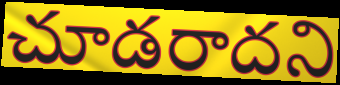
చూడరాదని